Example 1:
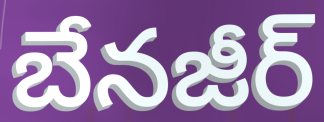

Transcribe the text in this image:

బేనజీర్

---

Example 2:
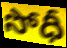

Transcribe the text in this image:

సోధీ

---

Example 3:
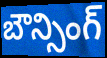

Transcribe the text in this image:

బౌన్సింగ్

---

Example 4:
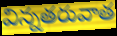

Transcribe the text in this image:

విన్నతరువాత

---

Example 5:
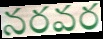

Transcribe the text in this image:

నరవర